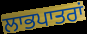
ਲਾਭਪਾਤਰਾਂ